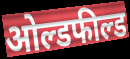
ओल्डफील्ड